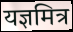
यज्ञमित्र